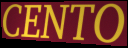
CENTO